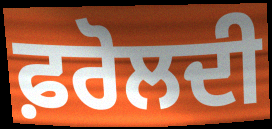
ਫ਼ਰੋਲਦੀ